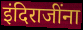
इंदिराजींना